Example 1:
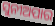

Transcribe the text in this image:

ସୁନୀଅପାର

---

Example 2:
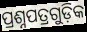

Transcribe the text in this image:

ପ୍ରଶ୍ନପତ୍ରଗୁଡ଼ିକ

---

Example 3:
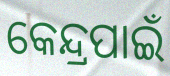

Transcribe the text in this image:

କେନ୍ଦ୍ରପାଇଁ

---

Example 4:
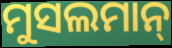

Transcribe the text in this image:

ମୁସଲମାନ୍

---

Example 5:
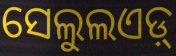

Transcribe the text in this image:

ସେଲୁଲଏଡ଼୍